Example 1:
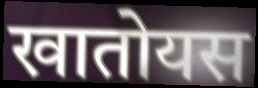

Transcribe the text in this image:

खातोयस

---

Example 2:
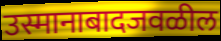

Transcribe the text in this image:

उस्मानाबादजवळील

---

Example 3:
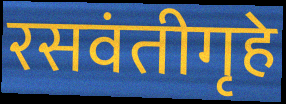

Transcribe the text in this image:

रसवंतीगृहे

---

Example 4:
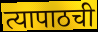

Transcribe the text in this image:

त्यापाठची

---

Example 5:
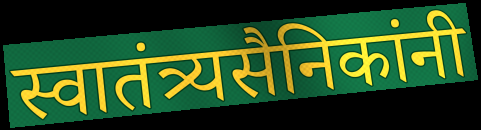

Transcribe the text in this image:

स्वातंत्र्यसैनिकांनी